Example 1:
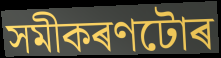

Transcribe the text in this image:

সমীকৰণটোৰ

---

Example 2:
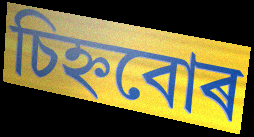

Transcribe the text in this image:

চিহ্নবোৰ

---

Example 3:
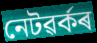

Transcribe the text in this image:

নেটৱৰ্কৰ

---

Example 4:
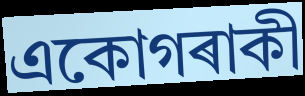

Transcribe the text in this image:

একোগৰাকী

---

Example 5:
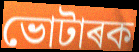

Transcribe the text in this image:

ভোটাৰক